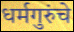
धर्मगुरुंचे